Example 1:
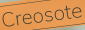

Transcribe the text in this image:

Creosote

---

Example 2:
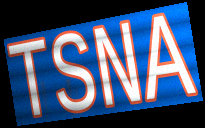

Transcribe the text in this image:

TSNA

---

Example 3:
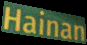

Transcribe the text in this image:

Hainan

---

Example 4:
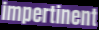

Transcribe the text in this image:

impertinent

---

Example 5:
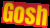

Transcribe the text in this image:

Gosh